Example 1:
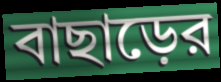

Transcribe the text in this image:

বাছাড়ের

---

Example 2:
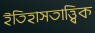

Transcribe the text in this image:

ইতিহাসতাত্ত্বিক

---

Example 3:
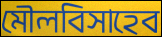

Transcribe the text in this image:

মৌলবিসাহেব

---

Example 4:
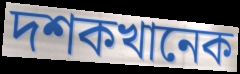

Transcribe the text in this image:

দশকখানেক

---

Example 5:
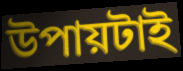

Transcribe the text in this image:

উপায়টাই